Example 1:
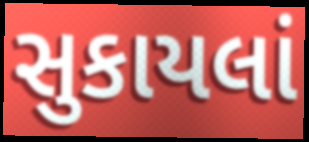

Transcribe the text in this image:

સુકાયલાં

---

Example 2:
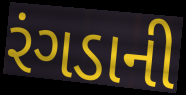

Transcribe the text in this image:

રંગડાની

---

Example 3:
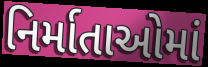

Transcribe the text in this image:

નિર્માતાઓમાં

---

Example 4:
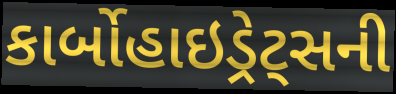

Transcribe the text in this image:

કાર્બોહાઇડ્રેટ્સની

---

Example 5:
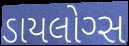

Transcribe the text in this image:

ડાયલોગ્સ